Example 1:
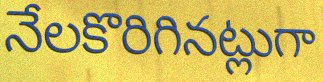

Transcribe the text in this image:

నేలకొరిగినట్లుగా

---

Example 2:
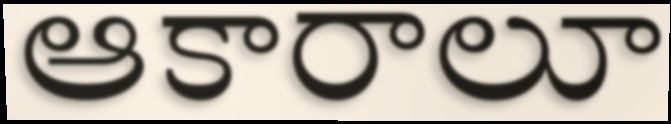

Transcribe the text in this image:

ఆకారాలూ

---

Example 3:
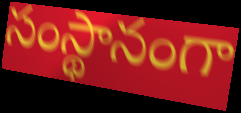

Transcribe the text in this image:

సంస్థానంగా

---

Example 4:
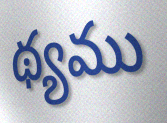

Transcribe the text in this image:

థ్యము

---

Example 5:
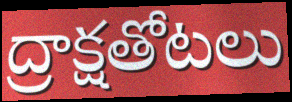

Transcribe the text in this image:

ద్రాక్షతోటలు